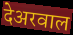
देअरवाल